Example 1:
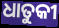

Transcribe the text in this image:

ଧାତୁକୀ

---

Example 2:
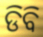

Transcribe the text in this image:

ଡିବି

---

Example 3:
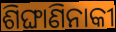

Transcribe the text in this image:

ଶିଙ୍ଘାଣିନାକୀ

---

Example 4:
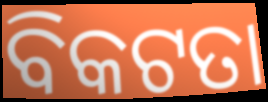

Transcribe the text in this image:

ବିକଟତା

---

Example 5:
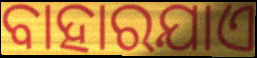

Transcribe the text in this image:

ବାହାରଯାଏ